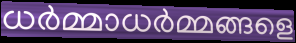
ധർമ്മാധർമ്മങ്ങളെ